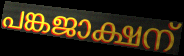
പങ്കജാക്ഷന്